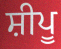
ਸ਼ੀਪੂ